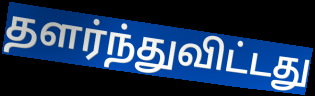
தளர்ந்துவிட்டது